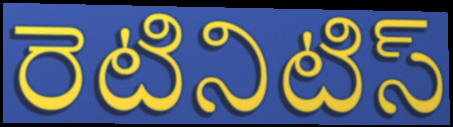
రెటినిటిస్